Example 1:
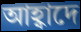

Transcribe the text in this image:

আহ্বাদে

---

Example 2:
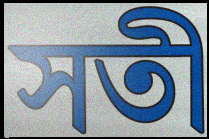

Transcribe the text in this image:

সতী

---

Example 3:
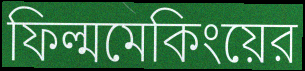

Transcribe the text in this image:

ফিল্মমেকিংয়ের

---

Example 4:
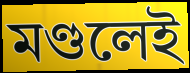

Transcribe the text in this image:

মণ্ডলেই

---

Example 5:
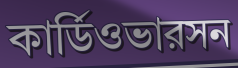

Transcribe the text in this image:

কার্ডিওভারসন